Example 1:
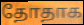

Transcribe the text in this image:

தோதாக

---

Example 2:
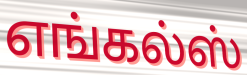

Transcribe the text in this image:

எங்கல்ஸ்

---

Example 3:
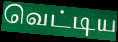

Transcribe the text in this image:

வெட்டிய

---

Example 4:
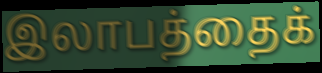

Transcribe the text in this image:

இலாபத்தைக்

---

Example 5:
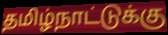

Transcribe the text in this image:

தமிழ்நாட்டுக்கு